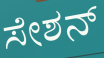
ಸೇಶನ್